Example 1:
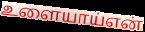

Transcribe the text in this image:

உளையாய்என்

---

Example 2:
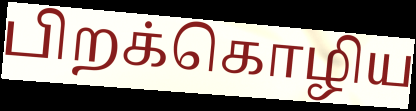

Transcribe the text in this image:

பிறக்கொழிய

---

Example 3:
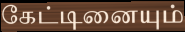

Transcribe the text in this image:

கேட்டினையும்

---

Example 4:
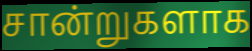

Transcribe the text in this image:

சான்றுகளாக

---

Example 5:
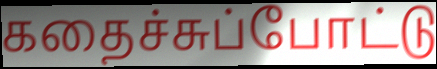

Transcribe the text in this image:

கதைச்சுப்போட்டு